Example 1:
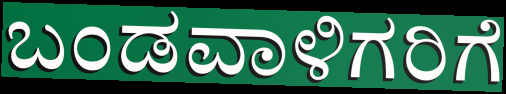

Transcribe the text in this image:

ಬಂಡವಾಳಿಗರಿಗೆ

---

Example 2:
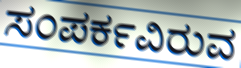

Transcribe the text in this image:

ಸಂಪರ್ಕವಿರುವ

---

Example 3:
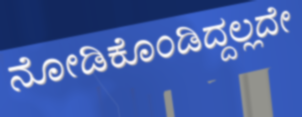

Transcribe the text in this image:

ನೋಡಿಕೊಂಡಿದ್ದಲ್ಲದೇ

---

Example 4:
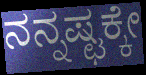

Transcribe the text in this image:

ನನ್ನಷ್ಟಕ್ಕೇ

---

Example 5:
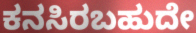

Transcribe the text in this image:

ಕನಸಿರಬಹುದೇ